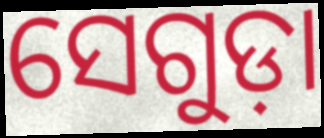
ସେଗୁଡ଼ା